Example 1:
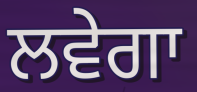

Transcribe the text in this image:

ਲਵੇਗਾ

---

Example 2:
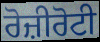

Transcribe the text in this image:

ਰੋਜ਼ੀਰੋਟੀ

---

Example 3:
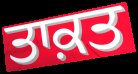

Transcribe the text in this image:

ਤਾਕ਼ਤ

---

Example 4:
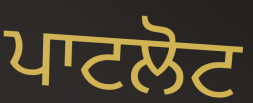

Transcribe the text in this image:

ਪਾਟਲੋਟ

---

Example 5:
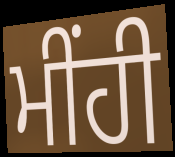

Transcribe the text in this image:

ਮੀਂਹੀ